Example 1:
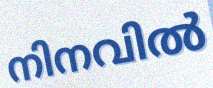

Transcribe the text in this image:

നിനവിൽ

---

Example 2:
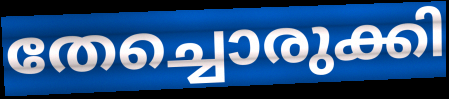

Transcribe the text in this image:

തേച്ചൊരുക്കി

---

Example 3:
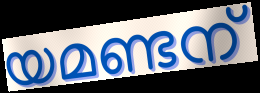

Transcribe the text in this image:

യമണ്ടന്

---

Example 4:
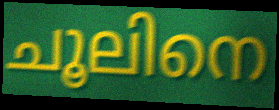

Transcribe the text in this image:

ചൂലിനെ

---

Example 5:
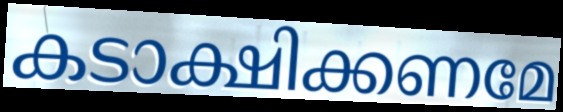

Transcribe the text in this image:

കടാക്ഷിക്കണമേ